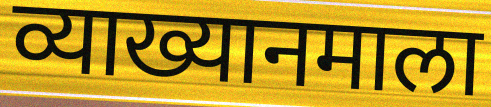
व्याख्यानमाला